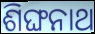
ଶିଙ୍ଘନାଥ